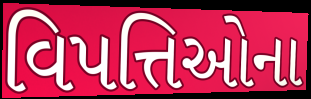
વિપત્તિઓના